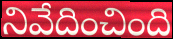
నివేదించింది